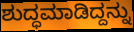
ಶುದ್ಧಮಾಡಿದ್ದನ್ನು